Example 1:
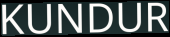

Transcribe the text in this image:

KUNDUR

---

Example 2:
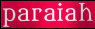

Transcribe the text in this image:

paraiah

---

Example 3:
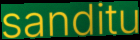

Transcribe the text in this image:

sanditu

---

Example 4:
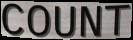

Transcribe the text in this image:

COUNT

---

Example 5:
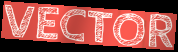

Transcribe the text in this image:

VECTOR